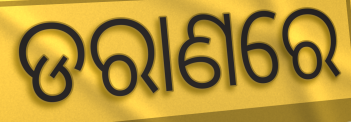
ଡରାଣରେ